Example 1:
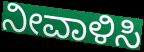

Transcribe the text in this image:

ನೀವಾಳಿಸಿ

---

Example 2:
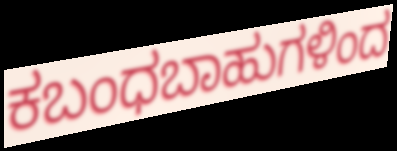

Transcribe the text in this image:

ಕಬಂಧಬಾಹುಗಳಿಂದ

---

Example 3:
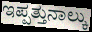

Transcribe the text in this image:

ಇಪ್ಪತ್ತುನಾಲ್ಕು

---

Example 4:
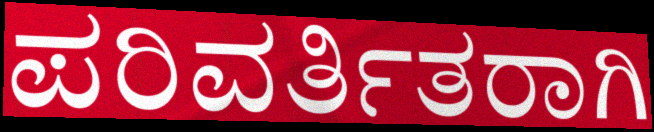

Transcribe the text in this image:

ಪರಿವರ್ತಿತರಾಗಿ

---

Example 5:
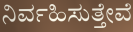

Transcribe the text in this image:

ನಿರ್ವಹಿಸುತ್ತೇವೆ